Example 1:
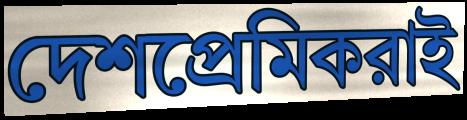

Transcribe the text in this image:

দেশপ্রেমিকরাই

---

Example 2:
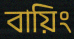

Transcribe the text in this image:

বায়িং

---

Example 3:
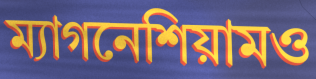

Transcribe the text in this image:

ম্যাগনেশিয়ামও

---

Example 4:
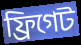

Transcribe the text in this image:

ফ্রিগেট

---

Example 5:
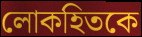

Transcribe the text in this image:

লোকহিতকে